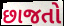
છાજતો